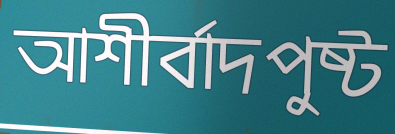
আশীর্বাদপুষ্ট